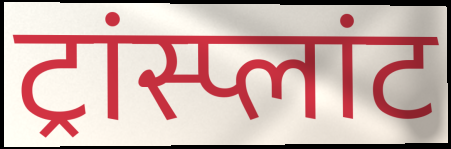
ट्रांस्प्लांट